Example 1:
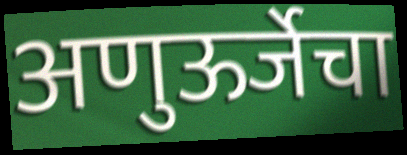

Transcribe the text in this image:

अणुऊर्जेचा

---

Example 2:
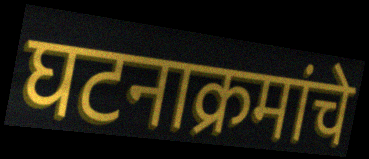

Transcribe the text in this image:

घटनाक्रमांचे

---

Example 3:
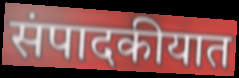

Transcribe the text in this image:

संपादकीयात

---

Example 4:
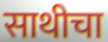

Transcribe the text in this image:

साथीचा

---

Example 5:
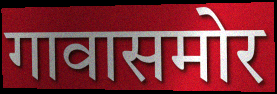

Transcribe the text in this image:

गावासमोर